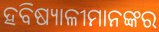
ହବିଷ୍ୟାଳୀମାନଙ୍କର